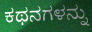
ಕಥನಗಳನ್ನು